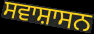
ਸਵਾਸ਼ਾਸਨ